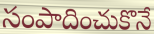
సంపాదించుకొనే